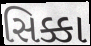
સિક્કા